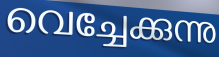
വെച്ചേക്കുന്നു